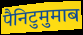
पैनिटुमुमाब